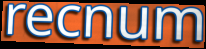
recnum